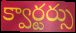
క్వార్టర్సు